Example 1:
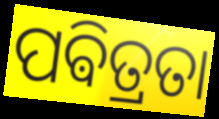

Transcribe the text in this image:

ପଵିତ୍ରତା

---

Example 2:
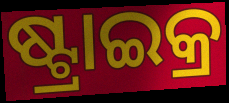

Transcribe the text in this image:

ଷ୍ଟ୍ରାଇକ୍ର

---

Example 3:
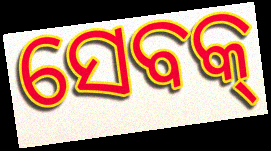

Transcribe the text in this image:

ସେବକ୍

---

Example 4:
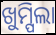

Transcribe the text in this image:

ଖୁମ୍ପିଲା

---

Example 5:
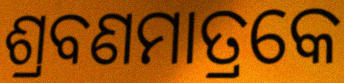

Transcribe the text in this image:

ଶ୍ରବଣମାତ୍ରକେ